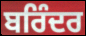
ਬਰਿੰਦਰ